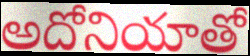
అదోనియాతో